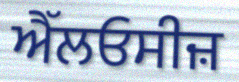
ਐੱਲਓਸੀਜ਼